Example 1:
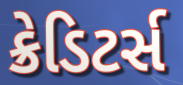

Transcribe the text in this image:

ક્રેડિટર્સ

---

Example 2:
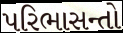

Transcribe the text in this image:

પરિભાસન્તો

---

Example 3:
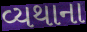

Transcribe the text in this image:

વ્યથાના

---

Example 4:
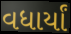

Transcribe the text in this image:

વધાર્યાં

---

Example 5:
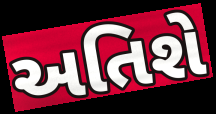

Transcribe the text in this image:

અતિશે